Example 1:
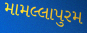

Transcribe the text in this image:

મામલ્લાપુરમ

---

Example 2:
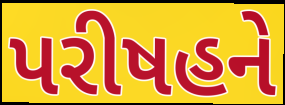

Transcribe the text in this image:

પરીષહને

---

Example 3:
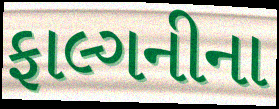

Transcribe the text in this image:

ફાલ્ગનીના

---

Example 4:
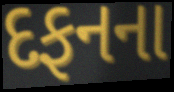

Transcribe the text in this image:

દફનના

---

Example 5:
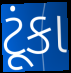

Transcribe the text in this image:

ટૂંકા